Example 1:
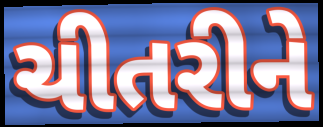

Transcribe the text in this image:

ચીતરીને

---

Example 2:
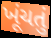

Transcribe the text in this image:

ખૂંચતું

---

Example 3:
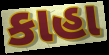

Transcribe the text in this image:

કાહા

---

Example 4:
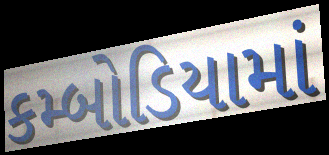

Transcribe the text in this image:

કમ્બોડિયામાં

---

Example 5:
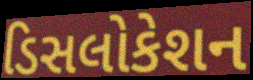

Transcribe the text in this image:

ડિસલોકેશન